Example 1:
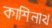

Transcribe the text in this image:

কাশিনাথ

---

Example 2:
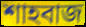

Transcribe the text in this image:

শাহবাজ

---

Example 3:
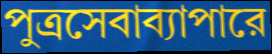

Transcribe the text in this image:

পুত্রসেবাব্যাপারে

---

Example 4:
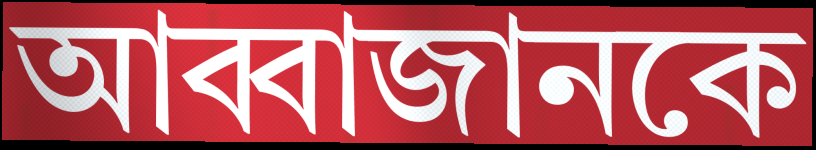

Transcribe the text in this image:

আব্বাজানকে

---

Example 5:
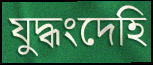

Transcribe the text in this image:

যুদ্ধংদেহি